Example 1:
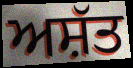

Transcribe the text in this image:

ਅਸ਼ੱਤ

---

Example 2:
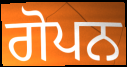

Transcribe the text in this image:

ਗੋਪਨ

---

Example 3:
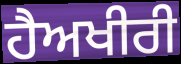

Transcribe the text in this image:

ਹੈਅਖੀਰੀ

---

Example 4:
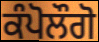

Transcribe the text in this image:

ਕੰਪੋਲੌਗੋ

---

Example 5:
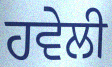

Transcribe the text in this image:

ਹਵੇਲੀ